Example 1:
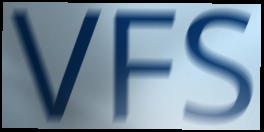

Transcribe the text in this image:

VFS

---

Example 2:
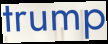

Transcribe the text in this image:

trump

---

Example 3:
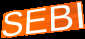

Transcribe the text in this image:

SEBI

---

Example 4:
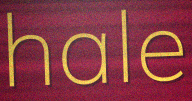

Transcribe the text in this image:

hale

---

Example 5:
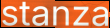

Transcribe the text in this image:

stanza